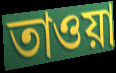
তাওয়া